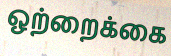
ஒற்றைக்கை